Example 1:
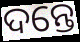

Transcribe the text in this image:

ଦନ୍ତେ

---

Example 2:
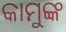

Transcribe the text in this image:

କାମୁଙ୍କ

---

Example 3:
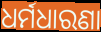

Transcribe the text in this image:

ଧର୍ମଧାରଣା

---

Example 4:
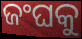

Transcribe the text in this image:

ଜଂଘକୁ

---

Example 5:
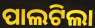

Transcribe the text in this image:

ପାଲଟିଲା